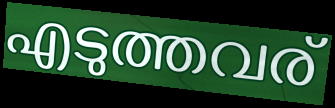
എടുത്തവര്